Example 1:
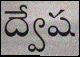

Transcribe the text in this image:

ద్వేష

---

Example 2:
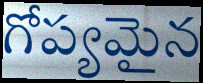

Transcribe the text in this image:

గోప్యమైన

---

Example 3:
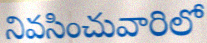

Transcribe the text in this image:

నివసించువారిలో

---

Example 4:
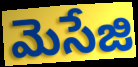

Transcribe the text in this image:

మెసేజి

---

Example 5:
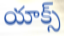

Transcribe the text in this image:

యాక్స్